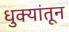
धुक्यांतून